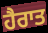
ਹੈਰਾਤ